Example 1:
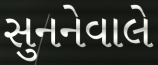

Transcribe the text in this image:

સુનનેવાલે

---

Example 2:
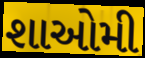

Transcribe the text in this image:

શાઓમી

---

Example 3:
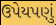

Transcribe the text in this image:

ઉપેયપણું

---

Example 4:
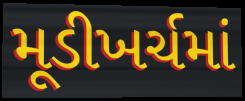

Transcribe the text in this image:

મૂડીખર્ચમાં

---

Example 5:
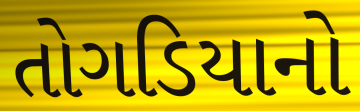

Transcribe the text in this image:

તોગડિયાનો